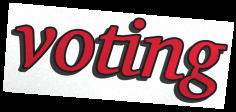
voting